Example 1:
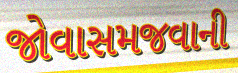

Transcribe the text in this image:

જોવાસમજવાની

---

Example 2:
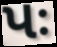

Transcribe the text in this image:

પઃ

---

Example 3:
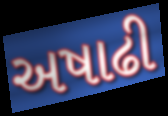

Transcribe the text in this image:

અષાઢી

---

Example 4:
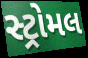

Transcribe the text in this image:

સ્ટ્રોમલ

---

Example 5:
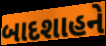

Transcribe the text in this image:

બાદશાહને